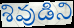
శివుడిని